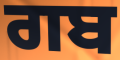
ਗਬ